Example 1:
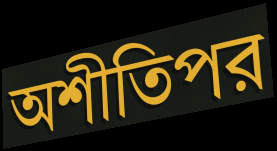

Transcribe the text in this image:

অশীতিপর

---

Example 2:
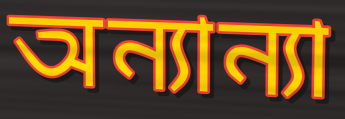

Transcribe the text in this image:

অন্যান্যা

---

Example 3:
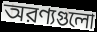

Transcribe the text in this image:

অরণ্যগুলো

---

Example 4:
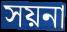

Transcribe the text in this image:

সয়না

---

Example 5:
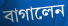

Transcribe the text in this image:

বাগালেন